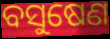
ବସୁଷେଣ